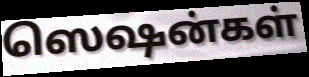
ஸெஷன்கள்